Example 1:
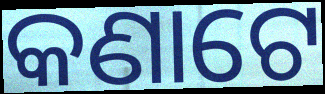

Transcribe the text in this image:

କଣାଟେ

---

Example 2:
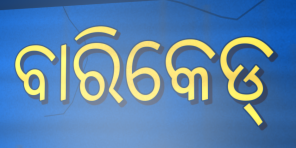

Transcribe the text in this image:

ବାରିକେଡ୍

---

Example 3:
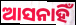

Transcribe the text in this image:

ଆସନାହିଁ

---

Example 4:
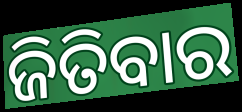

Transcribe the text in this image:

ଜିତିବାର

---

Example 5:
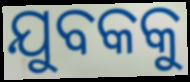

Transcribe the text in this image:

ଯୁବକକୁ